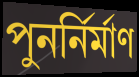
পুনর্নির্মাণ